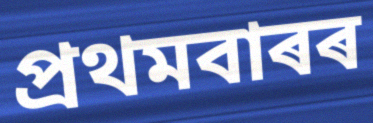
প্ৰথমবাৰৰ